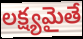
లక్ష్యమైతే